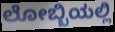
ಲೋಬ್ಬಿಯಲ್ಲಿ